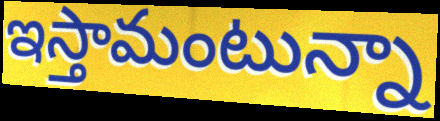
ఇస్తామంటున్నా